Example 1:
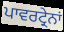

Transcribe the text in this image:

ਪਾਵਰਟ੍ਰੇਨਾਂ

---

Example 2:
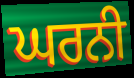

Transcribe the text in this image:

ਘਰਨੀ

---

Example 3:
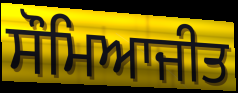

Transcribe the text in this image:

ਸੌਮਿਆਜੀਤ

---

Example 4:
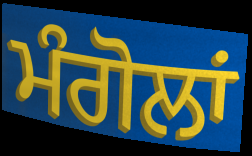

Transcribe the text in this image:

ਮੰਗੋਲਾਂ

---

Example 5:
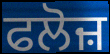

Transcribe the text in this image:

ਫਲੋਜ਼